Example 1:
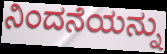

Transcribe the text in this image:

ನಿಂದನೆಯನ್ನು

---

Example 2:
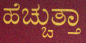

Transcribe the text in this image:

ಹೆಚ್ಚುತ್ತಾ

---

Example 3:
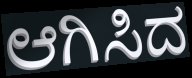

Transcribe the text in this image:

ಆಗಿಸಿದ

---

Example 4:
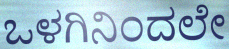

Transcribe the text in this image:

ಒಳಗಿನಿಂದಲೇ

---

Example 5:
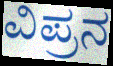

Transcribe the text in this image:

ವಿಪ್ರನ